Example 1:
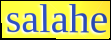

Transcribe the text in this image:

salahe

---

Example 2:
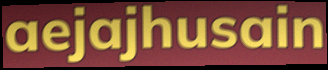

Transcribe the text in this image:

aejajhusain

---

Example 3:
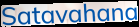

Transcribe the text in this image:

Satavahana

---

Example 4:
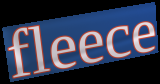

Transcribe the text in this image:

fleece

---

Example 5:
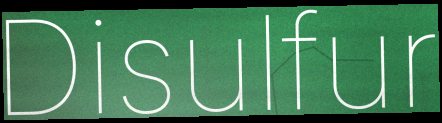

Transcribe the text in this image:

Disulfur